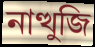
নাত্থুজি